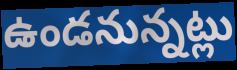
ఉండనున్నట్లు